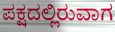
ಪಕ್ಷದಲ್ಲಿರುವಾಗ